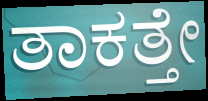
ತಾಕತ್ತೇ